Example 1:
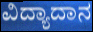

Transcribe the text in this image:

ವಿದ್ಯಾದಾನ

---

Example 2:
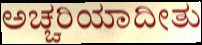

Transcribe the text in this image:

ಅಚ್ಚರಿಯಾದೀತು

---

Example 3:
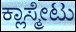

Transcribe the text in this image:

ಕ್ಲಾಸ್ಮೇಟು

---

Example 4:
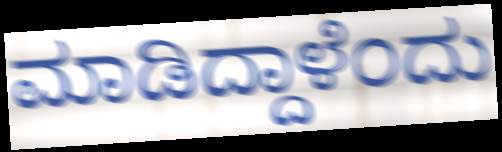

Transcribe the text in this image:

ಮಾಡಿದ್ದಾಳೆಂದು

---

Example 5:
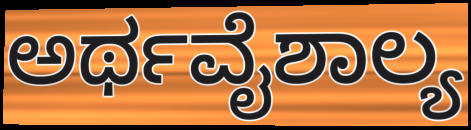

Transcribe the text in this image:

ಅರ್ಥವೈಶಾಲ್ಯ